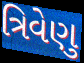
ત્રિવેણુ